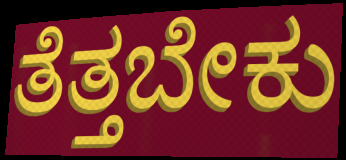
ತೆತ್ತಬೇಕು